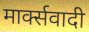
मार्क्सवादी